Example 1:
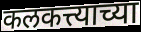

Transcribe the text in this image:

कलकत्त्याच्या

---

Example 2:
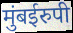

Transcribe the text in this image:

मुंबईरुपी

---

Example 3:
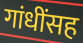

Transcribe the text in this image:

गांधींसह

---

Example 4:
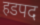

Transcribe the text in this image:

हडपद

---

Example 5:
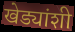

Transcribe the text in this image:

खेड्यांशी